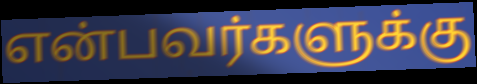
என்பவர்களுக்கு